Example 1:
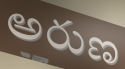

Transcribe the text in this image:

అరుణ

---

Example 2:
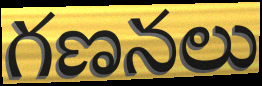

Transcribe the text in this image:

గణనలు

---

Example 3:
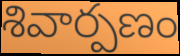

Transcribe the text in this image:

శివార్పణం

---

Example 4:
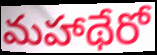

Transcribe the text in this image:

మహాథేరో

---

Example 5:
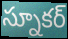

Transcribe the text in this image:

స్నూకర్